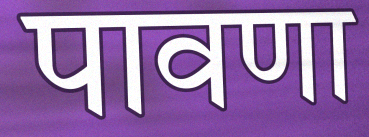
पावणा